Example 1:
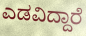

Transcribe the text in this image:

ಎಡವಿದ್ದಾರೆ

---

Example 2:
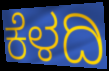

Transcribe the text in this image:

ಕೆಳದಿ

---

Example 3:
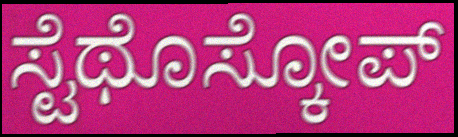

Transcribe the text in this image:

ಸ್ಟೆಥೊಸ್ಕೋಪ್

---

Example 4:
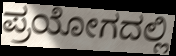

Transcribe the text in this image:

ಪ್ರಯೋಗದಲ್ಲಿ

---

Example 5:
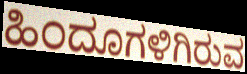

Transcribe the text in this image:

ಹಿಂದೂಗಳಿಗಿರುವ